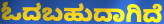
ಓದಬಹುದಾಗಿದೆ